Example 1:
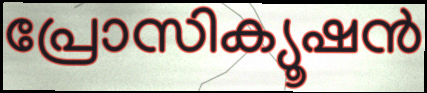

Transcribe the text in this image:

പ്രോസിക്യൂഷൻ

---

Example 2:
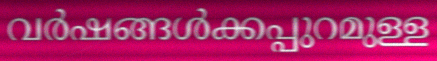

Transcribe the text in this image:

വർഷങ്ങൾക്കപ്പുറമുള്ള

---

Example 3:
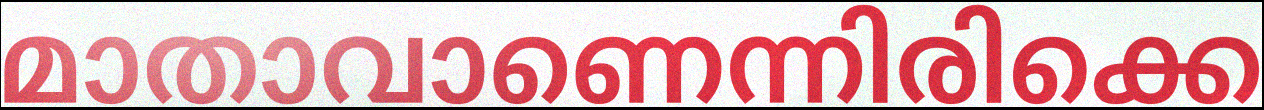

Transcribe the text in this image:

മാതാവാണെന്നിരിക്കെ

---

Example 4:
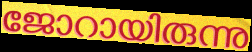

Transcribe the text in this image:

ജോറായിരുന്നു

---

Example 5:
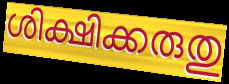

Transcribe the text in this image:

ശിക്ഷിക്കരുതു